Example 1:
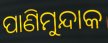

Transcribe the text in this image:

ପାଣିମୁନ୍ଦାକ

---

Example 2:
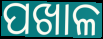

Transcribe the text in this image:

ପଖାଳ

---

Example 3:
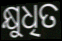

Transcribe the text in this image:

କ୍ଷୁଧିତ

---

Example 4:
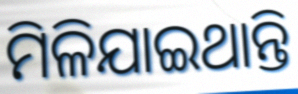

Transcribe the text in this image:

ମିଳିଯାଇଥାନ୍ତି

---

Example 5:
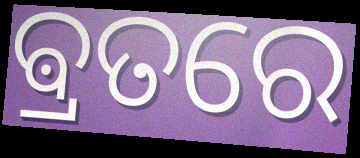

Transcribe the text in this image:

ଵ୍ରତରେ